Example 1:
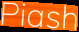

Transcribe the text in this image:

Piash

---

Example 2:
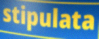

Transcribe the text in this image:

stipulata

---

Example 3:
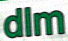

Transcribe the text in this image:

dlm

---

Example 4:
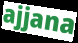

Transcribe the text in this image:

ajjana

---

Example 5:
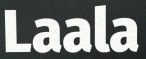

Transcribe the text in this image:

Laala